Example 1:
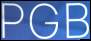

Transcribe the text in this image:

PGB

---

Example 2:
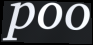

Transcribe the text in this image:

poo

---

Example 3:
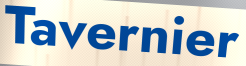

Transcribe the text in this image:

Tavernier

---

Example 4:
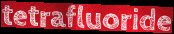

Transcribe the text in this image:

tetrafluoride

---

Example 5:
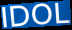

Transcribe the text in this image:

IDOL